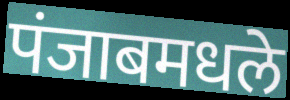
पंजाबमधले